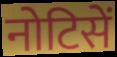
नोटिसें